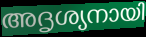
അദൃശ്യനായി